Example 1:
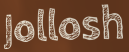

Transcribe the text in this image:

Jollosh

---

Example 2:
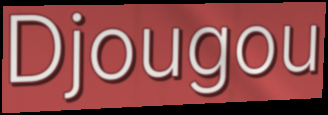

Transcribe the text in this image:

Djougou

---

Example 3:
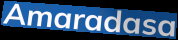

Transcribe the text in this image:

Amaradasa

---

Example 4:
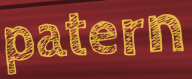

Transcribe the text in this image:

patern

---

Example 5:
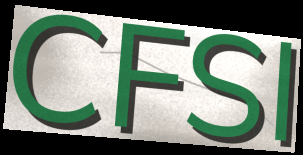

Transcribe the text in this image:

CFSI